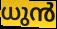
ധുൻ